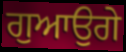
ਗੁਆਉਗੇ